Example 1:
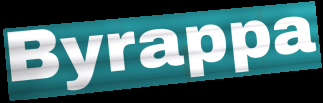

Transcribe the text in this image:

Byrappa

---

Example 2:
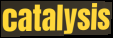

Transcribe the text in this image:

catalysis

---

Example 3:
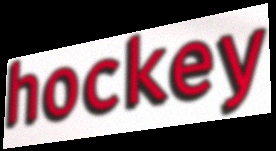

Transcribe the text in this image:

hockey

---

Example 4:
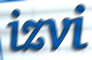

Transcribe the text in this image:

izvi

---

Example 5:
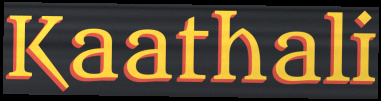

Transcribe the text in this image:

Kaathali